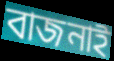
বাজনাই